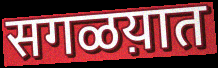
सगळय़ात